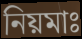
নিয়মাঃ